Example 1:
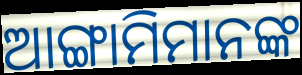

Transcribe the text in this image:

ଆଙ୍ଗାମିମାନଙ୍କ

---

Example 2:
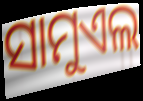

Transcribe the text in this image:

ସାମୁଏଲ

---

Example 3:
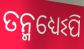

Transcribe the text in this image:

ତନ୍ମଧ୍ୟେଽପି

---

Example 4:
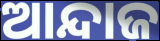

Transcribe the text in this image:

ଆନ୍ଦାଜ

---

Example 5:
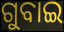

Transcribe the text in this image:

ଗୁବାଇ